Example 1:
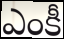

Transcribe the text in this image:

ఎంకీ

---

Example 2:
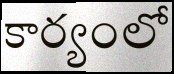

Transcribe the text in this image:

కార్యంలో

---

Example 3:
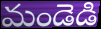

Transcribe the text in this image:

మండెడి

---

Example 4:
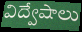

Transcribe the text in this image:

విద్వేషాలు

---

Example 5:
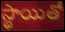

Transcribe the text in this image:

స్థాయితో